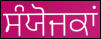
ਸੰਯੋਜਕਾਂ